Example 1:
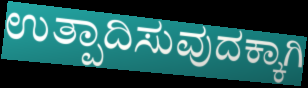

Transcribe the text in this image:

ಉತ್ಪಾದಿಸುವುದಕ್ಕಾಗಿ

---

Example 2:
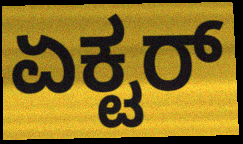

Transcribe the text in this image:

ಏಕ್ಟರ್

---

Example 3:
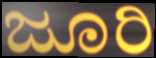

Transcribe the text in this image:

ಜೂರಿ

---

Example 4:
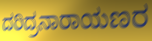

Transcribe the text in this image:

ದರಿದ್ರನಾರಾಯಣರ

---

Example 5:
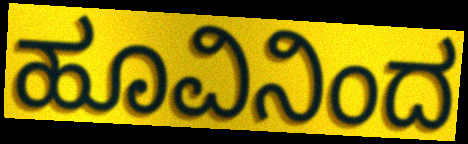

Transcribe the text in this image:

ಹೂವಿನಿಂದ